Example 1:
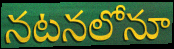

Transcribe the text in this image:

నటనలోనూ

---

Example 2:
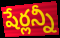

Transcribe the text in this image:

షేర్లన్నీ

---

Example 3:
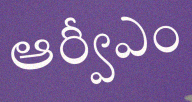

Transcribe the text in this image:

ఆర్వీఎం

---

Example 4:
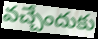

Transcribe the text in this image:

వచ్చేందుకు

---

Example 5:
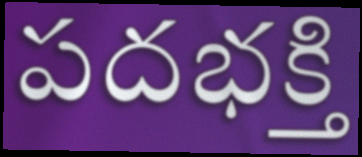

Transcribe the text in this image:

పదభక్తి